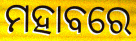
ମହାବରେ